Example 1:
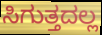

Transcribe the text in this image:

ಸಿಗುತ್ತದಲ್ಲ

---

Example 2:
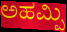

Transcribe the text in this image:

ಅಹಮ್ಪಿ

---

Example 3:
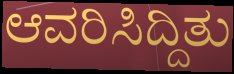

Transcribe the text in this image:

ಆವರಿಸಿದ್ದಿತು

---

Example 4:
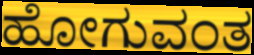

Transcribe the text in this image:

ಹೋಗುವಂತ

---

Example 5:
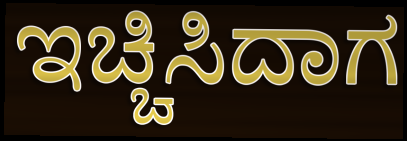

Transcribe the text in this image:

ಇಚ್ಚಿಸಿದಾಗ